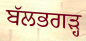
ਬੱਲਭਗੜ੍ਹ